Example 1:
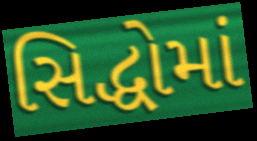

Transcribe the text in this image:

સિદ્ધોમાં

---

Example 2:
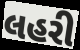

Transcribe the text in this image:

લહરી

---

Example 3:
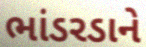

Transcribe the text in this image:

ભાંડરડાને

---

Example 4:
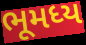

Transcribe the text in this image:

ભૂમધ્ય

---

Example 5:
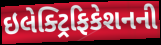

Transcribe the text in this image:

ઇલેક્ટ્રિફિકેશનની